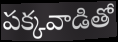
పక్కవాడితో